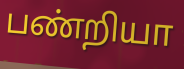
பண்றியா